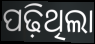
ପଢ଼ିଥିଲା